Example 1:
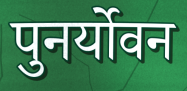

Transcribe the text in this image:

पुनर्योवन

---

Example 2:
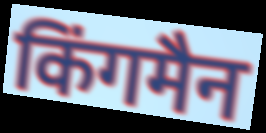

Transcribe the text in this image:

किंगमैन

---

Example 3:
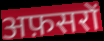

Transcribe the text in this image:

अफ़सरों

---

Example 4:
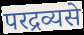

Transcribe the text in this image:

परद्रव्यसे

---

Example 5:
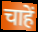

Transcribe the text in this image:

चाहें